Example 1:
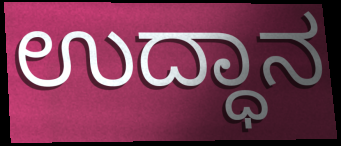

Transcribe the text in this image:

ಉದ್ಧಾನ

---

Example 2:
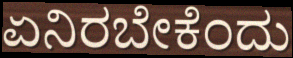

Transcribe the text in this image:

ಏನಿರಬೇಕೆಂದು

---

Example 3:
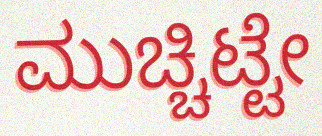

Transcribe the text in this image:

ಮುಚ್ಚಿಟ್ಟೇ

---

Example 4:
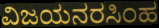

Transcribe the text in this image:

ವಿಜಯನರಸಿಂಹ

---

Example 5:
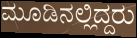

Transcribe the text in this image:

ಮೂಡಿನಲ್ಲಿದ್ದರು